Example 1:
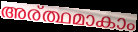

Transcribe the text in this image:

അര്ത്ഥമാകാം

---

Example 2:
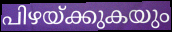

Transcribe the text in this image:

പിഴയ്ക്കുകയും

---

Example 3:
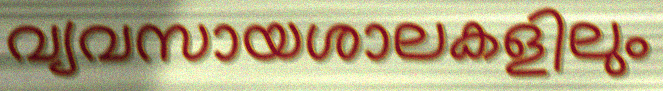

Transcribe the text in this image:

വ്യവസായശാലകളിലും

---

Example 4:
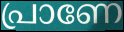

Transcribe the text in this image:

പ്രാണേ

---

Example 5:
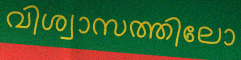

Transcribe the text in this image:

വിശ്വാസത്തിലോ